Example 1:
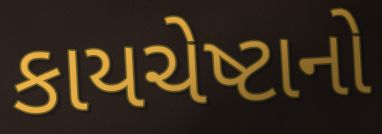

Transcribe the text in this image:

કાયચેષ્ટાનો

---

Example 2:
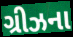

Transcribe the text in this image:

ગ્રીઝના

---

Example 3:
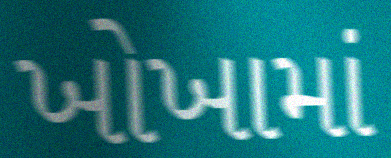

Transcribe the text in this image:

ખોખામાં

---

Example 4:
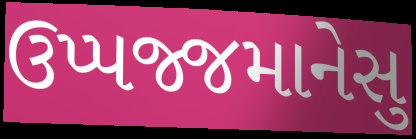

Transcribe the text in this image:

ઉપ્પજ્જમાનેસુ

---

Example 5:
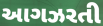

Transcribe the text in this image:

આગઝરતી